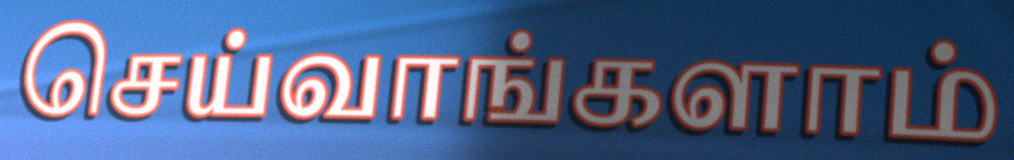
செய்வாங்களாம்